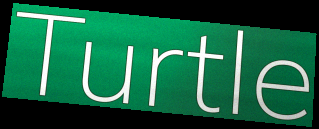
Turtle